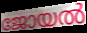
ജോയൽ